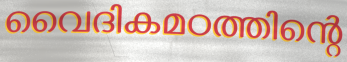
വൈദികമഠത്തിന്റെ